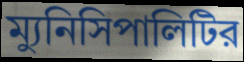
ম্যুনিসিপালিটির